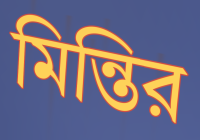
মিন্তির